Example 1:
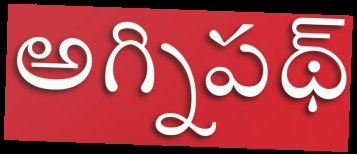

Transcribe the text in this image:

అగ్నిపథ్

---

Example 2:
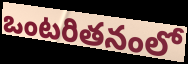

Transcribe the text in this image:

ఒంటరితనంలో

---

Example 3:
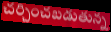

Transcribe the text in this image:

చర్చించబడుతున్న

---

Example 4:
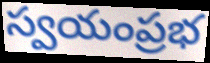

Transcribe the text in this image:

స్వయంప్రభ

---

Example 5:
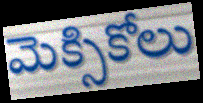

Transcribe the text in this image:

మెక్సికోలు